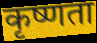
कृष्णता